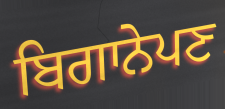
ਬਿਗਾਨੇਪਣ